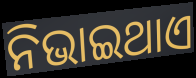
ନିଭାଇଥାଏ